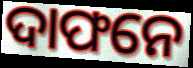
ଦାଫନେ